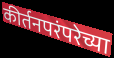
कीर्तनपरंपरेच्या